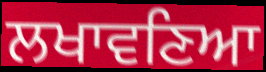
ਲਖਾਵਣਿਆ